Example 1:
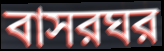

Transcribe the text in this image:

বাসরঘর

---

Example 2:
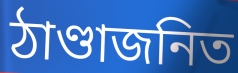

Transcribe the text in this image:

ঠাণ্ডাজনিত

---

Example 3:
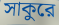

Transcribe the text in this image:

সাকুরে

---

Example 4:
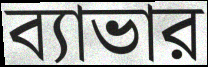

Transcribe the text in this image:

ব্যাভার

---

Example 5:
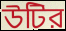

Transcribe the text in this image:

উটির